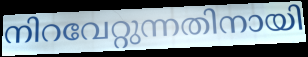
നിറവേറ്റുന്നതിനായി